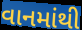
વાનમાંથી